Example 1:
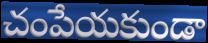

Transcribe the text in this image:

చంపేయకుండా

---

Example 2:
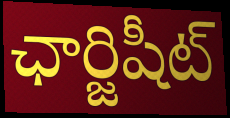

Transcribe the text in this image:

ఛార్జిషీట్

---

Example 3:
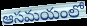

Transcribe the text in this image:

ఆసమయంలో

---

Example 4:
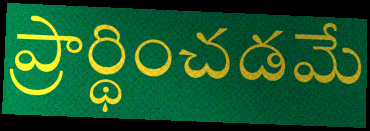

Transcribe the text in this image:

ప్రార్థించడమే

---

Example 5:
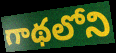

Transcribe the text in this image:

గాథలోని